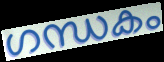
ഗന്ധകം